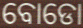
ବୋଡୋ